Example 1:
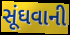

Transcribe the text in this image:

સૂંઘવાની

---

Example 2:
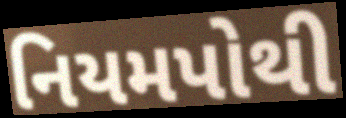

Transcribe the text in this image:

નિયમપોથી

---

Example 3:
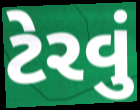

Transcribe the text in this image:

ટેરવું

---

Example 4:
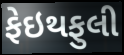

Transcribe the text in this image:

ફેઇથફુલી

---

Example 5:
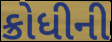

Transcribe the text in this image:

ક્રોધીની